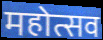
महोत्सव